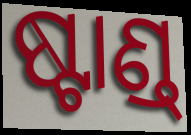
ଷ୍ଟାଣ୍ଡ୍